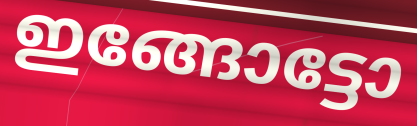
ഇങ്ങോട്ടോ